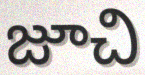
జూచి